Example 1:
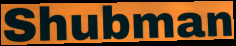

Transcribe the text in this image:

Shubman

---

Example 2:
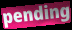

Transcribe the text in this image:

pending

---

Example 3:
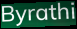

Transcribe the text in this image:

Byrathi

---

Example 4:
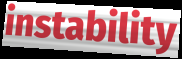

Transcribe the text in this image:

instability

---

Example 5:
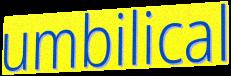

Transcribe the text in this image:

umbilical